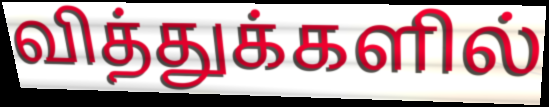
வித்துக்களில்